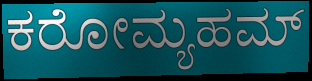
ಕರೋಮ್ಯಹಮ್